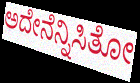
ಅದೇನೆನ್ನಿಸಿತೋ